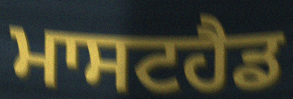
ਮਾਸਟਹੈਡ